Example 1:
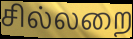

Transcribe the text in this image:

சில்லறை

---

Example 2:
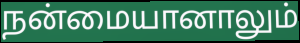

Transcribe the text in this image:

நன்மையானாலும்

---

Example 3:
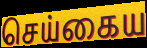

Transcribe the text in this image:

செய்கைய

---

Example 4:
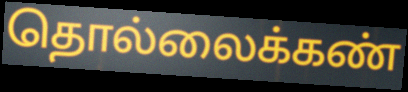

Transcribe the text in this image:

தொல்லைக்கண்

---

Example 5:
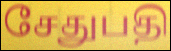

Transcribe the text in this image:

சேதுபதி